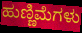
ಹುಣ್ಣಿಮೆಗಳು